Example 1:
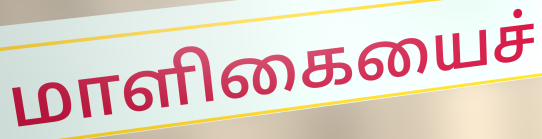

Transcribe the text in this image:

மாளிகையைச்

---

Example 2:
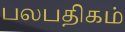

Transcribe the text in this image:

பலபதிகம்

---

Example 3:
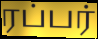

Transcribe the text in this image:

ரப்பர்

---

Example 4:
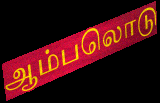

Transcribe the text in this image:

ஆம்பலொடு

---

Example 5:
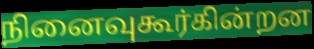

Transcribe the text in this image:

நினைவுகூர்கின்றன